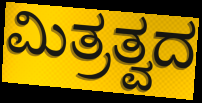
ಮಿತ್ರತ್ವದ